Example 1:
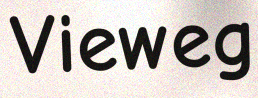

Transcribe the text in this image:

Vieweg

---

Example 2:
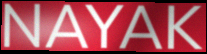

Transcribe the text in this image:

NAYAK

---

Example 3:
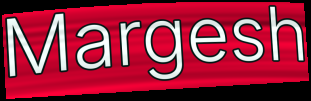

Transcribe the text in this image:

Margesh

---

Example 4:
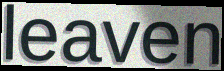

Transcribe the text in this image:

leaven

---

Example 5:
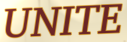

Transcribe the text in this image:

UNITE